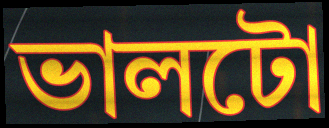
ভালটো